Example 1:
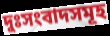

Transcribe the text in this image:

দুঃসংবাদসমূহ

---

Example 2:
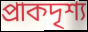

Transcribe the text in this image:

প্রাকদৃশ্য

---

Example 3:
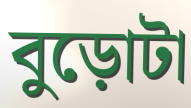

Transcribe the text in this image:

বুড়োটা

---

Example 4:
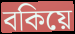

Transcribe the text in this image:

বকিয়ে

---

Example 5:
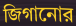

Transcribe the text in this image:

জিগানোর